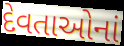
દેવતાઓનાં